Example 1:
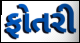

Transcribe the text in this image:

ફોતરી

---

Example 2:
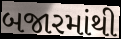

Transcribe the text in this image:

બજારમાંથી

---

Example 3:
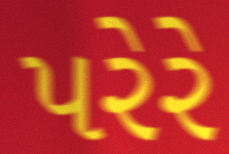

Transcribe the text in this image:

પરેરે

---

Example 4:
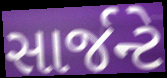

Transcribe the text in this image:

સાર્જન્ટે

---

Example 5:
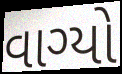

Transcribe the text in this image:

વાગ્યો